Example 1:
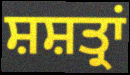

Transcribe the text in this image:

ਸ਼ਸ਼ਤ੍ਰਾਂ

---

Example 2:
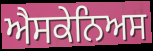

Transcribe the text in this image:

ਐਸਕੇਨਿਅਸ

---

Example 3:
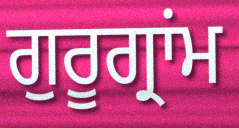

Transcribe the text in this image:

ਗੁਰੂਗ੍ਰਾਂਮ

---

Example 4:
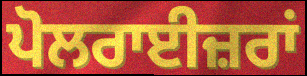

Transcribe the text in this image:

ਪੋਲਰਾਈਜ਼ਰਾਂ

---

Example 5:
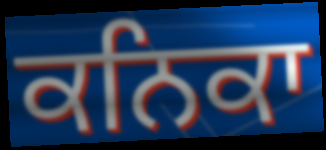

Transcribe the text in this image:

ਕਨਿਕਾ